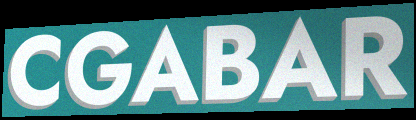
CGABAR